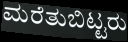
ಮರೆತುಬಿಟ್ಟರು